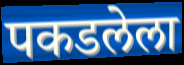
पकडलेला